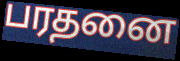
பரதனை